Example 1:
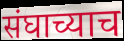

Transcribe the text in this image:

संघाच्याच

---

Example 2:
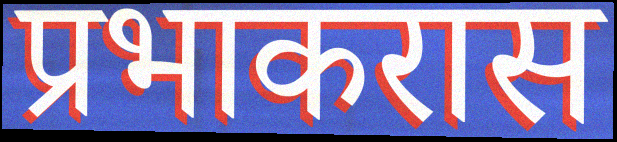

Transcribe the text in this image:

प्रभाकरास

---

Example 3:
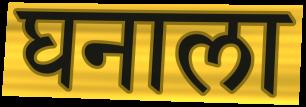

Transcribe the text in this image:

घनाला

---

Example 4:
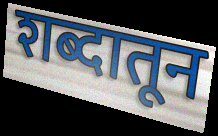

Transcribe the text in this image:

शब्दातून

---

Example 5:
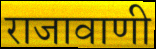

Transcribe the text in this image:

राजावाणी